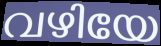
വഴിയേ